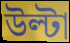
উল্টা